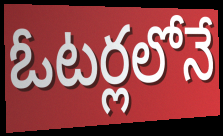
ఓటర్లలోనే